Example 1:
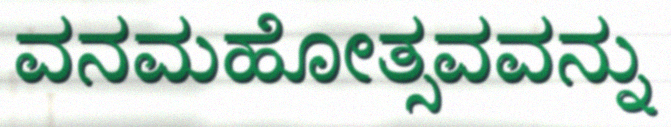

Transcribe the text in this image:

ವನಮಹೋತ್ಸವವನ್ನು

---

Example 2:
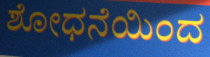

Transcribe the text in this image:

ಶೋಧನೆಯಿಂದ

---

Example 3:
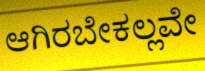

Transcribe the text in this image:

ಆಗಿರಬೇಕಲ್ಲವೇ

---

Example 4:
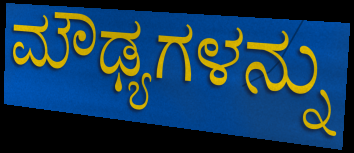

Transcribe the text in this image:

ಮೌಢ್ಯಗಳನ್ನು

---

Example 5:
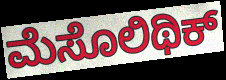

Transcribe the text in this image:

ಮೆಸೊಲಿಥಿಕ್